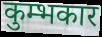
कुम्भकार